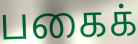
பகைக்